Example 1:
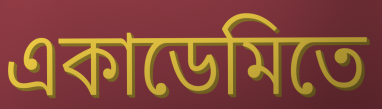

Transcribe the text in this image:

একাডেমিতে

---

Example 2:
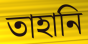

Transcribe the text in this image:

তাহানি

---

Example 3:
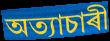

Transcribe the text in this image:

অত্যাচাৰী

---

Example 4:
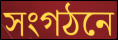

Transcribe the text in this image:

সংগঠনে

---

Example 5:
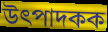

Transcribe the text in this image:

উৎপাদকক